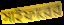
সাইফারের